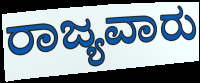
ರಾಜ್ಯವಾರು